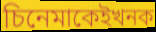
চিনেমাকেইখনক